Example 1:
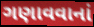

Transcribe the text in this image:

ગણાવવાનાં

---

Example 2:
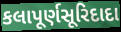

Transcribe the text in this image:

કલાપૂર્ણસૂરિદાદા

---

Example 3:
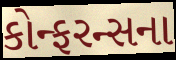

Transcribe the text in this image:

કોન્ફરન્સના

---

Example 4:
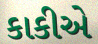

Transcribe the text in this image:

કાકીએ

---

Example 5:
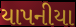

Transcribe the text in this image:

યાપનીયા